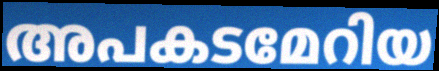
അപകടമേറിയ